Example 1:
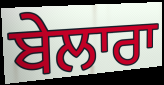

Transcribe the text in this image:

ਬੇਲਾਰਾ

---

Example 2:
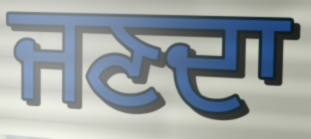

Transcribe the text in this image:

ਜਣਦਾ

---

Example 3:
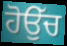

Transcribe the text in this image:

ਹੋਉੱਚ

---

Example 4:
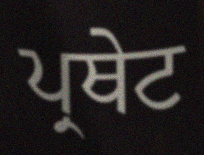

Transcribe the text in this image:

ਪ੍ਰਥੇਟ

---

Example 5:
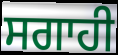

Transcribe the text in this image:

ਸਗਾਹੀ